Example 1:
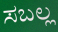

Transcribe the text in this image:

ಸಬಲ್ಲ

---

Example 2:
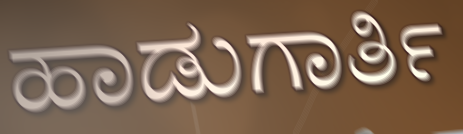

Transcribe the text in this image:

ಹಾಡುಗಾರ್ತಿ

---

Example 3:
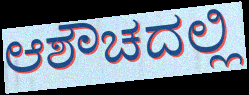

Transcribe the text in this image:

ಆಶೌಚದಲ್ಲಿ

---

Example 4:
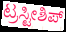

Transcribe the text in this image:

ಟ್ರಸ್ಟೀಶಿಪ್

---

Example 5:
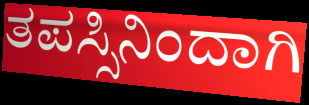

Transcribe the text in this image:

ತಪಸ್ಸಿನಿಂದಾಗಿ